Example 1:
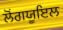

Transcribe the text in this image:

ਲੋਂਗਯੂਇਲ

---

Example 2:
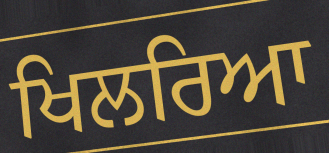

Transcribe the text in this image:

ਖਿਲਰਿਆ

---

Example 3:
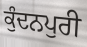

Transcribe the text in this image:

ਕੁੰਦਨਪੁਰੀ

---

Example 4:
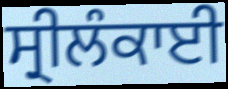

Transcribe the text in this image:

ਸ੍ਰੀਲੰਕਾਈ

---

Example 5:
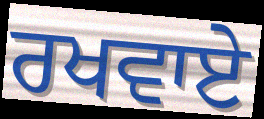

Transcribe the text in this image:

ਰਖਵਾਏ